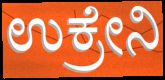
ಉಕ್ರೇನಿ